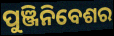
ପୁଞ୍ଜିନିବେଶର